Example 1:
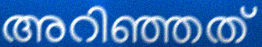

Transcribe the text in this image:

അറിഞ്ഞത്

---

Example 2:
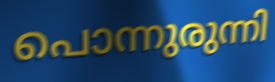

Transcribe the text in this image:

പൊന്നുരുന്നി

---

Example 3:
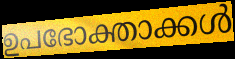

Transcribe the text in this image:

ഉപഭോക്താക്കൾ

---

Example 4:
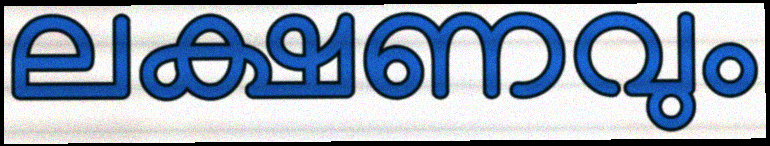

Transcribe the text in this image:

ലക്ഷണവും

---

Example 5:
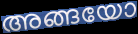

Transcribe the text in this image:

അങ്ങയോ